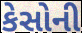
કેસોની